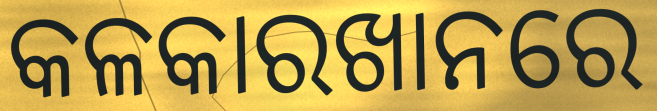
କଳକାରଖାନରେ